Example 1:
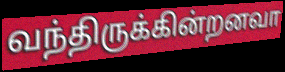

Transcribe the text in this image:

வந்திருக்கின்றனவா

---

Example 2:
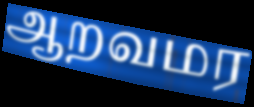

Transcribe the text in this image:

ஆறவமர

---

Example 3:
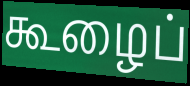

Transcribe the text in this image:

கூழைப்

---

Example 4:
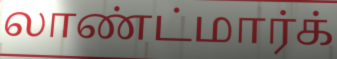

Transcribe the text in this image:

லாண்ட்மார்க்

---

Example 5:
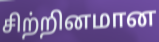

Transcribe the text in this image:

சிற்றினமான